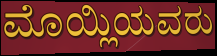
ಮೊಯ್ಲಿಯವರು